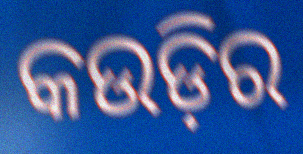
କଉଡ଼ିର